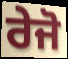
ਰੇਜੋ